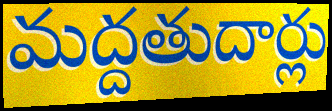
మద్దతుదార్లు